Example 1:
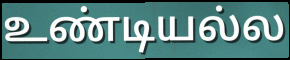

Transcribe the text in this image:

உண்டியல்ல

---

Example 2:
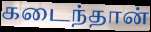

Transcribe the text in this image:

கடைந்தான்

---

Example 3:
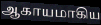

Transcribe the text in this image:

ஆகாயமாகிய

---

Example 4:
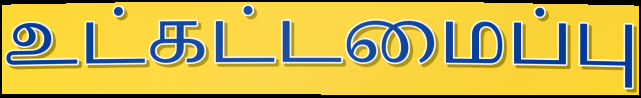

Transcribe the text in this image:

உட்கட்டமைப்பு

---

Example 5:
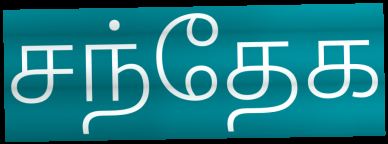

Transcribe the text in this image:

சந்தேக